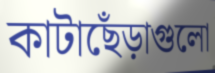
কাটাছেঁড়াগুলো